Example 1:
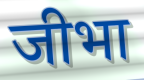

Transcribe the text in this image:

जीभा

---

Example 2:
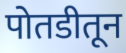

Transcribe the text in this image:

पोतडीतून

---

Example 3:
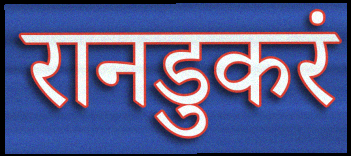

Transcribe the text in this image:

रानडुकरं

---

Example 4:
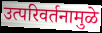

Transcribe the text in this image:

उत्परिवर्तनामुळे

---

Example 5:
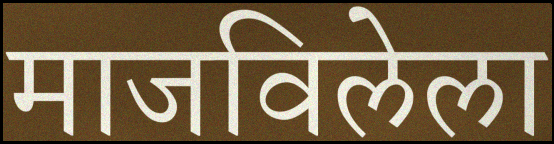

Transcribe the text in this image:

माजविलेला